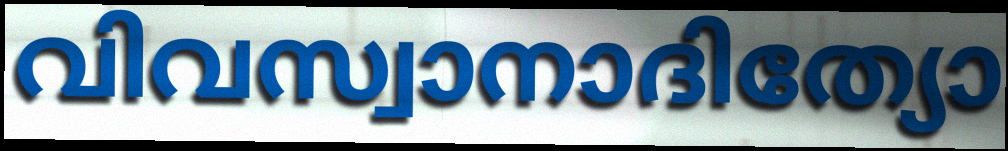
വിവസ്വാനാദിത്യോ